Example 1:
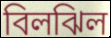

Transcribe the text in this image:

বিলঝিল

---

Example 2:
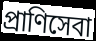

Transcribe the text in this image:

প্রাণিসেবা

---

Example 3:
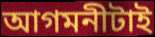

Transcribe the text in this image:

আগমনীটাই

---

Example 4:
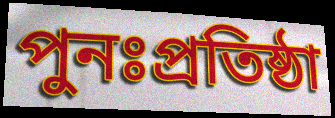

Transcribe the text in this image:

পুনঃপ্রতিষ্ঠা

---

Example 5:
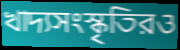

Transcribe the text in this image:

খাদ্যসংস্কৃতিরও